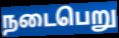
நடைபெறு